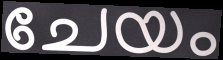
ചേയം